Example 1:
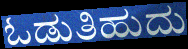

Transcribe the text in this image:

ಓಡುತಿಹುದು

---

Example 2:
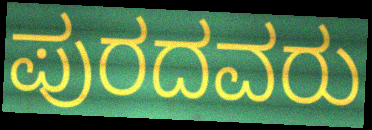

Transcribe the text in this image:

ಪುರದವರು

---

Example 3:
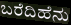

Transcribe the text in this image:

ಬರೆದಿಹೆನು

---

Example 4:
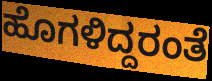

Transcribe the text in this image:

ಹೊಗಳಿದ್ದರಂತೆ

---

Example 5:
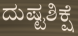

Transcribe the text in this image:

ದುಷ್ಟಶಿಕ್ಷೆ